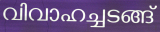
വിവാഹച്ചടങ്ങ്